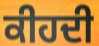
ਕੀਹਦੀ